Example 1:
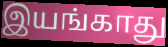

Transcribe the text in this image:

இயங்காது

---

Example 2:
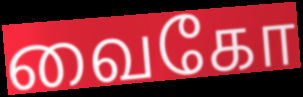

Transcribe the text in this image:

வைகோ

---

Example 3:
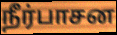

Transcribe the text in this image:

நீர்பாசன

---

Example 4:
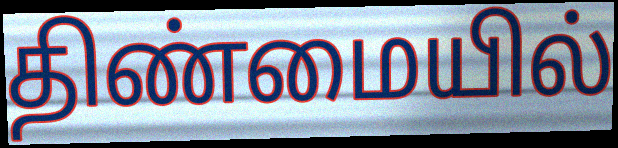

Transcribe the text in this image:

திண்மையில்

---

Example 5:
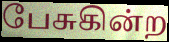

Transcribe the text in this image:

பேசுகின்ற